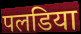
पलडिया